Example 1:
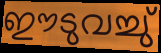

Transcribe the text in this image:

ഈടുവച്ചു്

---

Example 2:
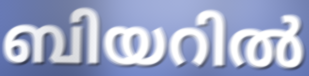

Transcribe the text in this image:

ബിയറിൽ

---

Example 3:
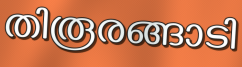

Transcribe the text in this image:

തിരൂരങ്ങാടി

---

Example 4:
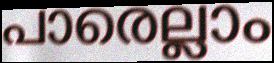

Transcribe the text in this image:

പാരെല്ലാം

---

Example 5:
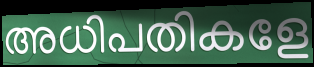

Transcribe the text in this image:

അധിപതികളേ